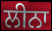
ਲੀਨਾ